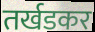
तर्खडकर